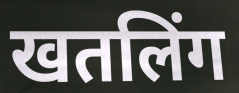
खतलिंग